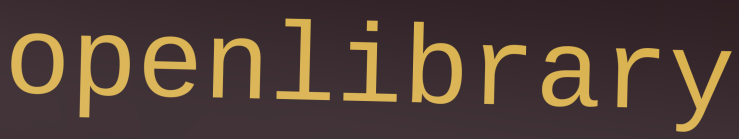
openlibrary